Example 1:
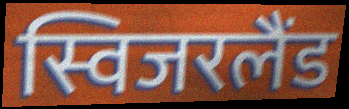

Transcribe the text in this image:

स्विजरलैंड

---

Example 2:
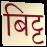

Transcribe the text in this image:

बिट्ट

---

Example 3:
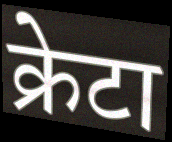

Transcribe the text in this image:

क्रेटा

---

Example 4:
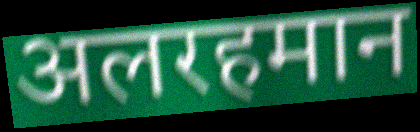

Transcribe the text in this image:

अलरहमान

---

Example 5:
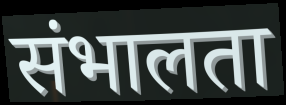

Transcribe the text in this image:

संभालता